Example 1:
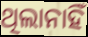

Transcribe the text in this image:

ଥିଲାନାହିଁ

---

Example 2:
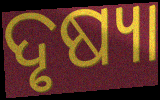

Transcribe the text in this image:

ଦୃଷ୍ୟା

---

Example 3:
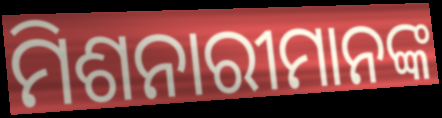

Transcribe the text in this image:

ମିଶନାରୀମାନଙ୍କ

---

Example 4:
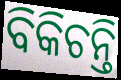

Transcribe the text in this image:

ବିକିଚନ୍ତି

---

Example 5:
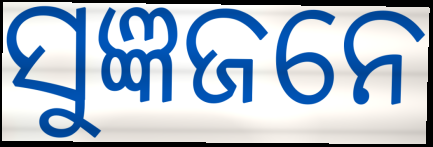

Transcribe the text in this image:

ସୁଜ୍ଞଜନେ